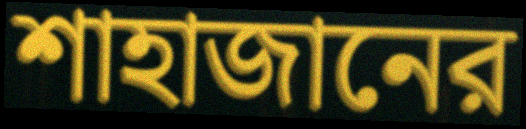
শাহাজানের